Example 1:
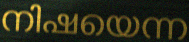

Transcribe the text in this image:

നിഷയെന്ന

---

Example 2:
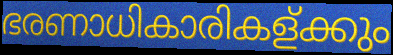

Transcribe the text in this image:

ഭരണാധികാരികള്ക്കും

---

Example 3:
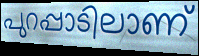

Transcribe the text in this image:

പുറപ്പാടിലാണ്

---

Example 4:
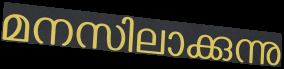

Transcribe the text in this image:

മനസിലാക്കുന്നു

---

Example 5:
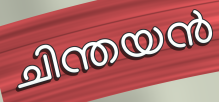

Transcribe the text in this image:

ചിന്തയൻ